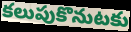
కలుపుకొనుటకు